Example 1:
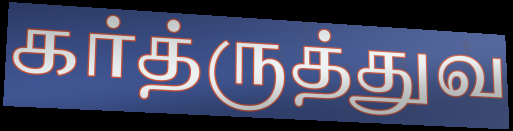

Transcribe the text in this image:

கர்த்ருத்துவ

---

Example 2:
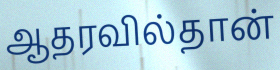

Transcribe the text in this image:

ஆதரவில்தான்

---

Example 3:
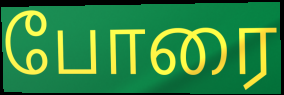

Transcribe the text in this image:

போரை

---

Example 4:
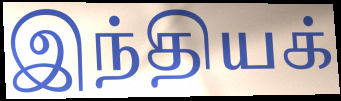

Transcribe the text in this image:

இந்தியக்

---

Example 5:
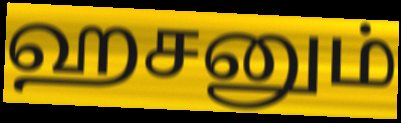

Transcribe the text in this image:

ஹசனும்